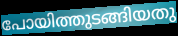
പോയിത്തുടങ്ങിയതു